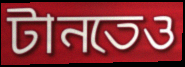
টানতেও